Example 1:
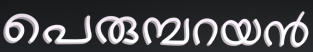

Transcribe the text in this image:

പെരുമ്പറയൻ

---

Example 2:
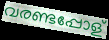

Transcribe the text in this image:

വരണ്ടപ്പോള്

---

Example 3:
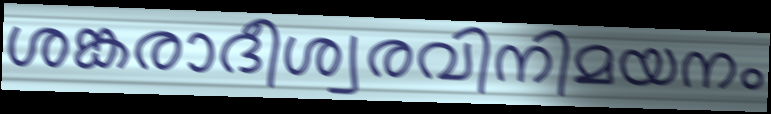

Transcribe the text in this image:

ശങ്കരാദീശ്വരവിനിമയനം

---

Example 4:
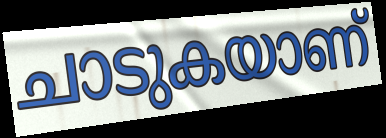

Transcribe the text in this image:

ചാടുകയാണ്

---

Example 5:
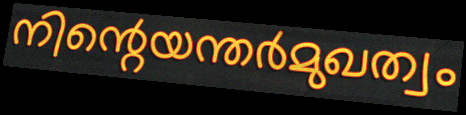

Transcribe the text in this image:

നിന്റെയന്തർമുഖത്വം